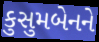
કુસુમબેનને